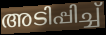
അടിപ്പിച്ച്